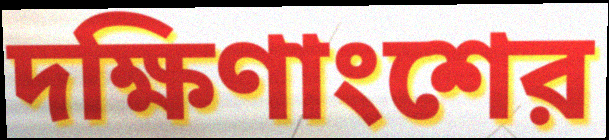
দক্ষিণাংশের